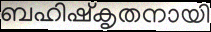
ബഹിഷ്കൃതനായി